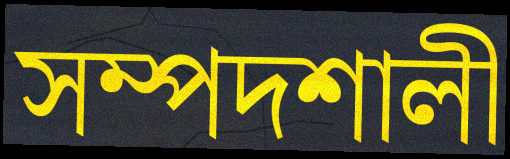
সম্পদশালী